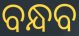
ବନ୍ଧବ